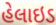
હેલાઇડ